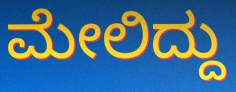
ಮೇಲಿದ್ದು